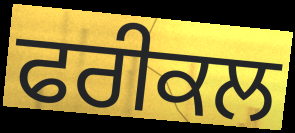
ਫਰੀਕਲ